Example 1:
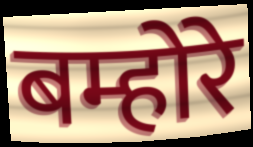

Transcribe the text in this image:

बम्होरे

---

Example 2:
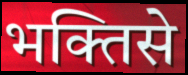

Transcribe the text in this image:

भक्तिसे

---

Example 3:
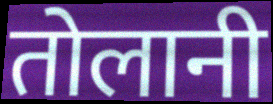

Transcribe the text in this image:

तोलानी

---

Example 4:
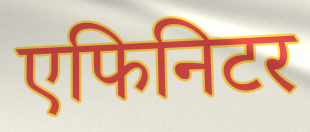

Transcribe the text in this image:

एफिनिटर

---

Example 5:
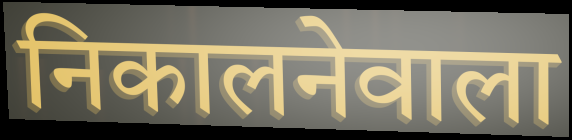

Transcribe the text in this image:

निकालनेवाला